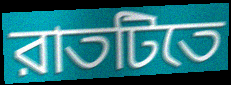
রাতটিতে